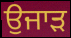
ਉਜਾੜ